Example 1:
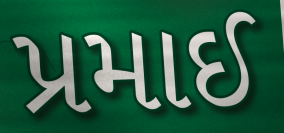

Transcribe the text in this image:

પ્રમાઈ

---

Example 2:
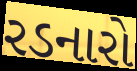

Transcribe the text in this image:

રડનારો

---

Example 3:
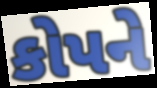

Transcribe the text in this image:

કોપને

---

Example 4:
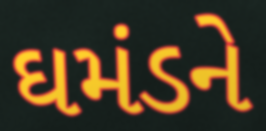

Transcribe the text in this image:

ઘમંડને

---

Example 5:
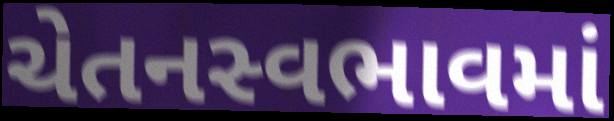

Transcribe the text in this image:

ચેતનસ્વભાવમાં